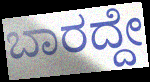
ಬಾರದ್ದೇ